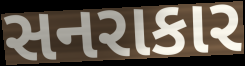
સનરાકાર